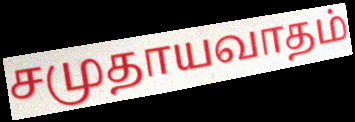
சமுதாயவாதம்